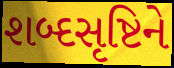
શબ્દસૃષ્ટિને